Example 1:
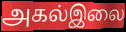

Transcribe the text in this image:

அகல்இலை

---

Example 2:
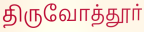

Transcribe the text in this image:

திருவோத்தூர்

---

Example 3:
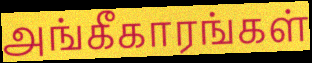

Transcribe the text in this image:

அங்கீகாரங்கள்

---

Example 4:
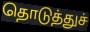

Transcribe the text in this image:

தொடுத்துச்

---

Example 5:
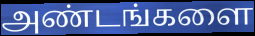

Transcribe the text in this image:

அண்டங்களை